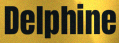
Delphine